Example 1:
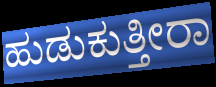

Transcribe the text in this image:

ಹುಡುಕುತ್ತೀರಾ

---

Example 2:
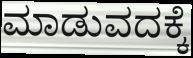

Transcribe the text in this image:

ಮಾಡುವದಕ್ಕೆ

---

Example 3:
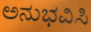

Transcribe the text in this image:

ಅನುಭವಿಸಿ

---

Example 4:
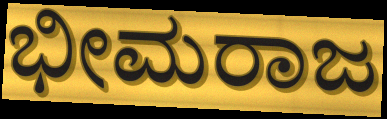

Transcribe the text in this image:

ಭೀಮರಾಜ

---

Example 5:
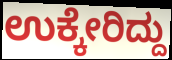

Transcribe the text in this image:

ಉಕ್ಕೇರಿದ್ದು